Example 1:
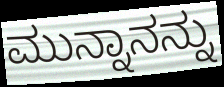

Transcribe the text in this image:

ಮುನ್ನಾನನ್ನು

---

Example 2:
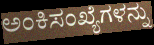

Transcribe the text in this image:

ಅಂಕಿಸಂಖ್ಯೆಗಳನ್ನು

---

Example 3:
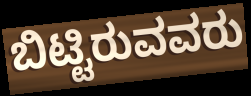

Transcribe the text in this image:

ಬಿಟ್ಟಿರುವವರು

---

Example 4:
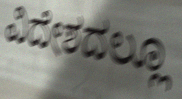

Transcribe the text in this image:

ವಿದೇಶದಲ್ಲೂ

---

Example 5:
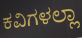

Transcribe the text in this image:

ಕವಿಗಳಲ್ಲಾ